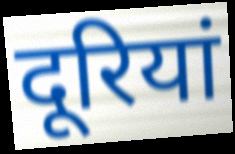
दूरियां